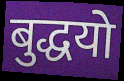
बुद्धयो